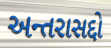
અન્તરાસદ્દો